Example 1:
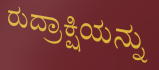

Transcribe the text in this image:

ರುದ್ರಾಕ್ಷಿಯನ್ನು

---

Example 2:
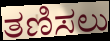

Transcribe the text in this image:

ತಣಿಸಲು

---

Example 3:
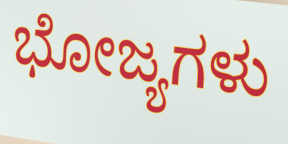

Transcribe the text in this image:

ಭೋಜ್ಯಗಳು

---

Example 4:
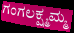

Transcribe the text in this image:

ಗಂಗಲಕ್ಷ್ಮಮ್ಮ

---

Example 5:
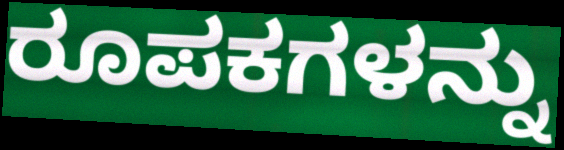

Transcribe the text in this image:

ರೂಪಕಗಳನ್ನು